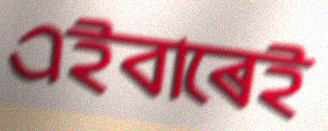
এইবাৰেই